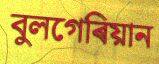
বুলগেৰিয়ান